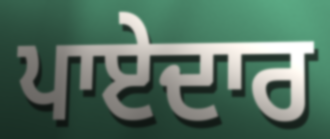
ਪਾਏਦਾਰ